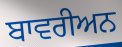
ਬਾਵਰੀਅਨ